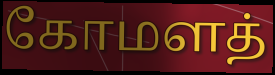
கோமளத்